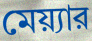
মেয়্যার